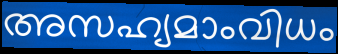
അസഹ്യമാംവിധം